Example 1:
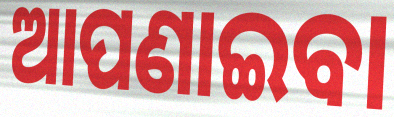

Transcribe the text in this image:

ଆପଣାଇବା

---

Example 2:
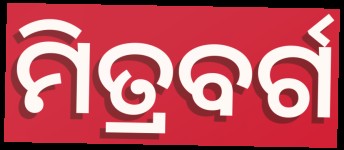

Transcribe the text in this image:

ମିତ୍ରବର୍ଗ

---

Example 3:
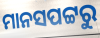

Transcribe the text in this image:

ମାନସପଟ୍ଟରୁ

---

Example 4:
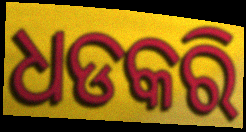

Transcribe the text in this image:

ଧଡକରି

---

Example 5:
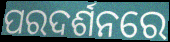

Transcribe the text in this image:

ପରଦର୍ଶନରେ